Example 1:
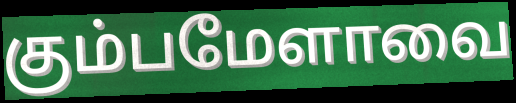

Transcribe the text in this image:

கும்பமேளாவை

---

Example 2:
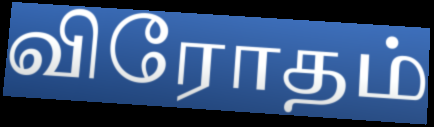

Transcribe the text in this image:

விரோதம்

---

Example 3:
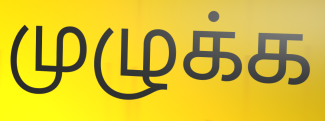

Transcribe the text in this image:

முழுக்க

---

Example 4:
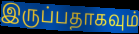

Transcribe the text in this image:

இருப்பதாகவும்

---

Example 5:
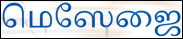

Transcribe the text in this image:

மெஸேஜை